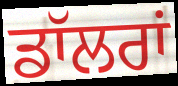
ਡਾੱਲਰਾਂ